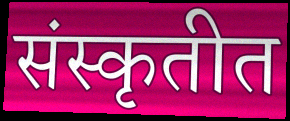
संस्कृतीत